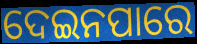
ଦେଇନପାରେ